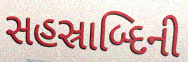
સહસ્રાબ્દિની